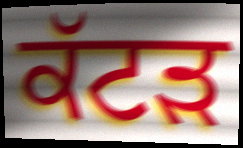
ਕੱਟੜ